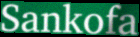
Sankofa